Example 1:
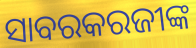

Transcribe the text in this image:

ସାବରକରଜୀଙ୍କ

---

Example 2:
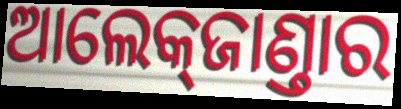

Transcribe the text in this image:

ଆଲେକ୍‌ଜାଣ୍ତାର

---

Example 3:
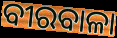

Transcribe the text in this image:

ବୀରବାଳା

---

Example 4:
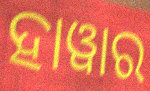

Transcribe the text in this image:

ହାୱାର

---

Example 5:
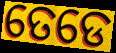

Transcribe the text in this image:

ତେଡେ